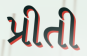
પ્રીતી